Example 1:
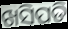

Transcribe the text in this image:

ଖସିପଡି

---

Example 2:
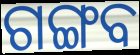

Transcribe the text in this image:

ଗଙ୍ଗବ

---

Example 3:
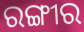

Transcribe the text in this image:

ରଙ୍ଗୀର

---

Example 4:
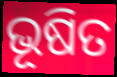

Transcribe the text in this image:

ଭୂଷିତ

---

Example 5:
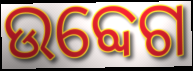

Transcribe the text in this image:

ଉବ୍ଦେଗ